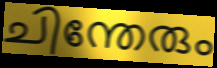
ചിന്തേരും